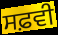
ਸਫ਼ਵੀ